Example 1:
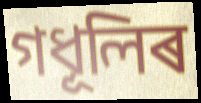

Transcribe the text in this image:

গধূলিৰ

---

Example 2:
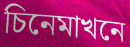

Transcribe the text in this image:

চিনেমাখনে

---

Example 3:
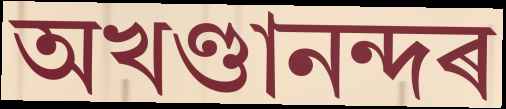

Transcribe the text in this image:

অখণ্ডানন্দৰ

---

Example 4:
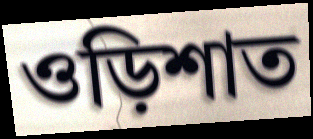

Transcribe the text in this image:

ওড়িশাত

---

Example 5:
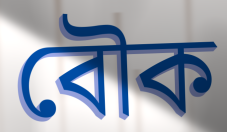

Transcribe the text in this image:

বৌক